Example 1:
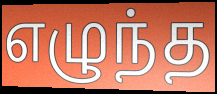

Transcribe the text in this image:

எழுந்த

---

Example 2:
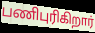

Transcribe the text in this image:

பணிபுரிகிறார்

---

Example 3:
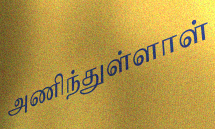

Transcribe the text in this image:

அணிந்துள்ளாள்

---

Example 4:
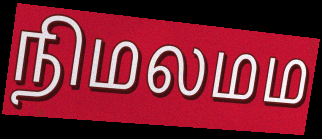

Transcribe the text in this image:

நிமலமம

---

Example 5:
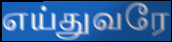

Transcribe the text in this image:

எய்துவரே